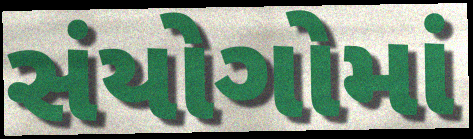
સંયોગોમાં